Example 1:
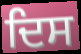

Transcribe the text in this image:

ਦਿਸ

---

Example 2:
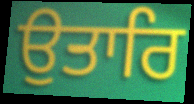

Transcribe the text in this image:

ਉਤਾਰਿ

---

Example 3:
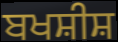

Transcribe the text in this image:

ਬਖਸ਼ੀਸ਼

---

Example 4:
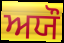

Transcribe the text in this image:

ਅਯੌ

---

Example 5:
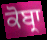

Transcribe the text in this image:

ਕੋਬ੍ਰਾ